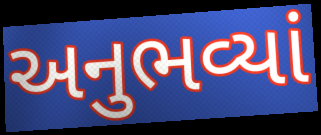
અનુભવ્યાં